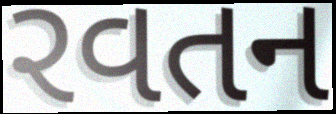
રવતન